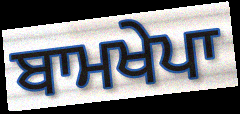
ਬਾਮਖੇਪਾ